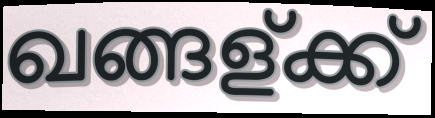
ഖങ്ങള്ക്ക്